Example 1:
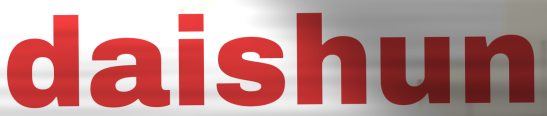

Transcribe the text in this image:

daishun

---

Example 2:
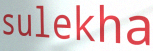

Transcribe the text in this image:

sulekha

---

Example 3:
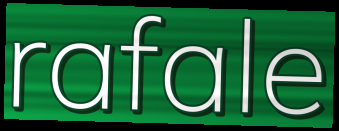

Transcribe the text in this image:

rafale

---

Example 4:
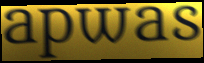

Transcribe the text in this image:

apwas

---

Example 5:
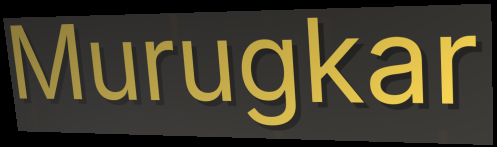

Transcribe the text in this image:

Murugkar